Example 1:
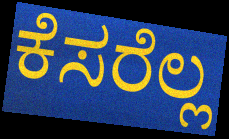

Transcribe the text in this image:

ಕೆಸರೆಲ್ಲ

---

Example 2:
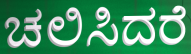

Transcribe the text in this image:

ಚಲಿಸಿದರೆ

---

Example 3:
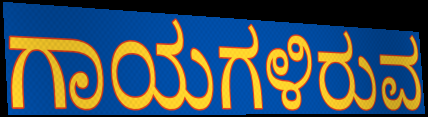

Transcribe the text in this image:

ಗಾಯಗಳಿರುವ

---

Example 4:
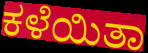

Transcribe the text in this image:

ಕಳೆಯಿತಾ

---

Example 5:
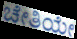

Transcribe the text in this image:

ಚೇತಿಯೇ